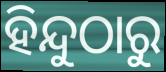
ହିନ୍ଦୁଠାରୁ